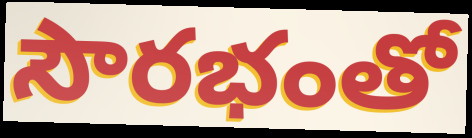
సౌరభంతో